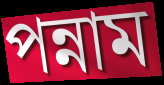
পন্নাম